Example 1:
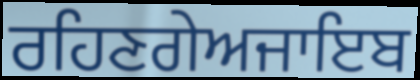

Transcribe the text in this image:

ਰਹਿਣਗੇਅਜਾਇਬ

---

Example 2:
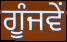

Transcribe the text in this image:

ਗੂੰਜਵੇਂ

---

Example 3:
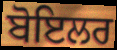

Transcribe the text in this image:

ਬੋਇਲਰ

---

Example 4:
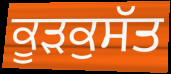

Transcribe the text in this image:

ਕੂੜਕੁਸੱਤ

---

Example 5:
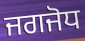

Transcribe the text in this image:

ਜਗਜੋਧ